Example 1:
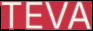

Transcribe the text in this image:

TEVA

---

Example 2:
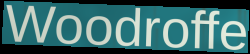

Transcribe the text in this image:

Woodroffe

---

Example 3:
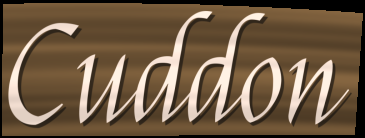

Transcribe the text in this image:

Cuddon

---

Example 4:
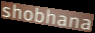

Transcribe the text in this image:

shobhana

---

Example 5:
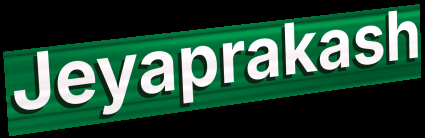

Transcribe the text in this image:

Jeyaprakash